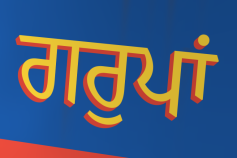
ਗਰੁਪਾਂ